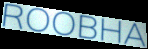
ROOBHA